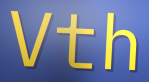
Vth